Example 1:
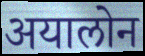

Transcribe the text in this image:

अयालोन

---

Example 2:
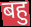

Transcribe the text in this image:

बहु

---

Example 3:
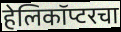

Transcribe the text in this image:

हेलिकॉप्टरचा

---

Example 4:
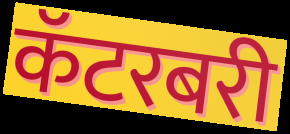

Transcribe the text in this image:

कॅटरबरी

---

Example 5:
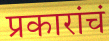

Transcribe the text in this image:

प्रकारांचं